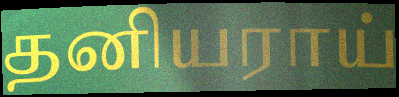
தனியராய்